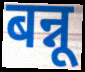
बन्नू